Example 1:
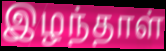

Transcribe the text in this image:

இழந்தாள்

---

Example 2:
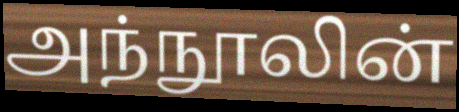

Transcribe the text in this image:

அந்நூலின்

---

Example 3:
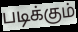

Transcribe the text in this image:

படிக்கும்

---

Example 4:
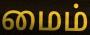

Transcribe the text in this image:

மைம்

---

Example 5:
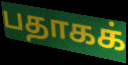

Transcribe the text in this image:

பதாகக்